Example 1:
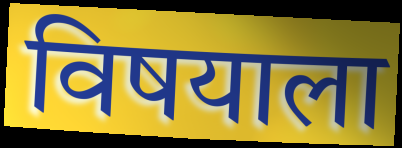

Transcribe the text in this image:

विषयाला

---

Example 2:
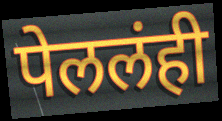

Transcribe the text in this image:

पेललंही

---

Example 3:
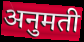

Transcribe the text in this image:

अनुमती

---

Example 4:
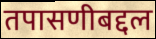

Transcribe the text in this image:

तपासणीबद्दल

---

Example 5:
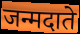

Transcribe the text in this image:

जन्मदाते